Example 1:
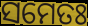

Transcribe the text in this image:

ସମେତଃ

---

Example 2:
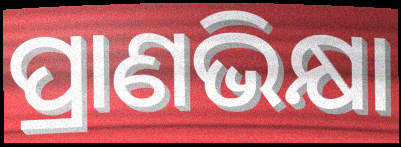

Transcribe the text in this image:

ପ୍ରାଣଭିକ୍ଷା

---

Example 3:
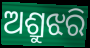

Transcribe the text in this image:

ଅଶ୍ରୁଝରି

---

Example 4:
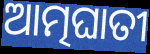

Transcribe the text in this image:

ଆତ୍ମଘାତୀ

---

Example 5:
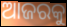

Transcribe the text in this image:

ଆଜରକୁ